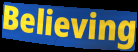
Believing